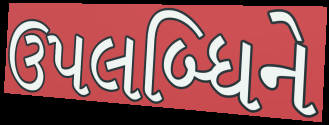
ઉપલબ્ધિને